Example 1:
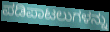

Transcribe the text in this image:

ಪಡಿಪಾಟಲುಗಳನ್ನು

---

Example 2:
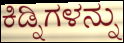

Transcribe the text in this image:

ಕಿಡ್ನಿಗಳನ್ನು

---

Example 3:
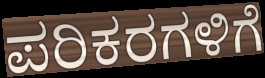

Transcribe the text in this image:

ಪರಿಕರಗಳಿಗೆ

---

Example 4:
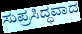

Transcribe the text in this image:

ಸುಪ್ರಸಿದ್ಧವಾದ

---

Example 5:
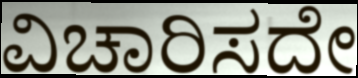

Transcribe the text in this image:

ವಿಚಾರಿಸದೇ